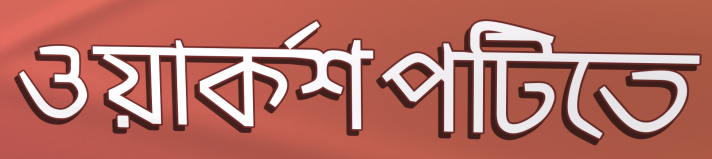
ওয়ার্কশপটিতে